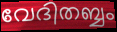
വേദിതബ്ബം